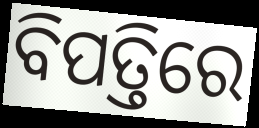
ବିପତ୍ତିରେ